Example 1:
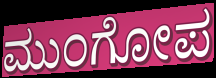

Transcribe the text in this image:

ಮುಂಗೋಪ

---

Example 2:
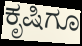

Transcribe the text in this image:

ಕೃಷಿಗೂ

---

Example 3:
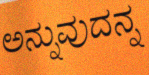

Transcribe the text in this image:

ಅನ್ನುವುದನ್ನ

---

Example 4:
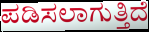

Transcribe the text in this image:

ಪಡಿಸಲಾಗುತ್ತಿದೆ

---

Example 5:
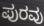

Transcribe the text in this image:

ಪುರವು